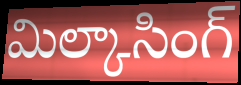
మిల్కాసింగ్